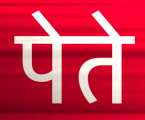
पेते